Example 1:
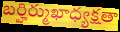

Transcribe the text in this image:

బర్హిర్ముఖాధ్యక్షతా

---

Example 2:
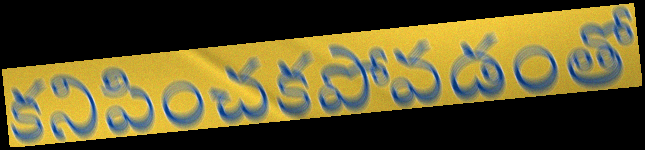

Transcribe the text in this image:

కనిపించకపోవడంతో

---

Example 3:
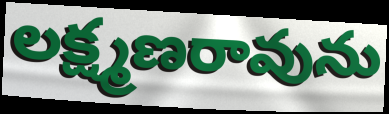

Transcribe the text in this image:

లక్ష్మణరావును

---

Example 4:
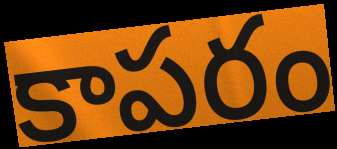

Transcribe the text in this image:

కాపరం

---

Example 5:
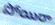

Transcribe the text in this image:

పోయిరా